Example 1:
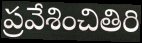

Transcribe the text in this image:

ప్రవేశించితిరి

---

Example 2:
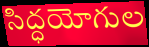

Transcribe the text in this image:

సిద్ధయోగుల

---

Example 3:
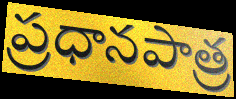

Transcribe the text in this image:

ప్రధానపాత్ర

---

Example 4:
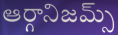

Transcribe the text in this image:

ఆర్గానిజమ్స్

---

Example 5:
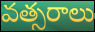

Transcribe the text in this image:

వత్సరాలు